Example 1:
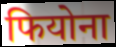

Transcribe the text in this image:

फियोना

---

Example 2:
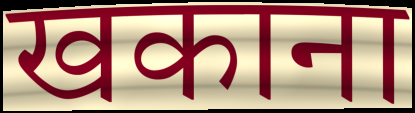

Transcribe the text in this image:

खकाना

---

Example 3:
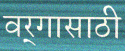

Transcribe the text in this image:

वर्गासाठी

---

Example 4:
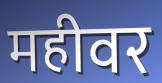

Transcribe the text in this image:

महीवर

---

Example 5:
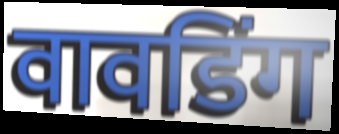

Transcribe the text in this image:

वावडिंग